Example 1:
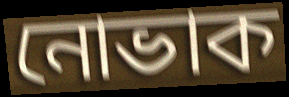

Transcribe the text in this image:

নোভাক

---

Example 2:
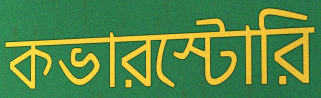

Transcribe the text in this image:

কভারস্টোরি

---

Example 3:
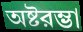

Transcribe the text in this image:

অষ্টরম্ভা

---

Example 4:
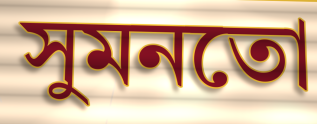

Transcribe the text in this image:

সুমনতো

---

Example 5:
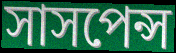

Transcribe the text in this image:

সাসপেন্স